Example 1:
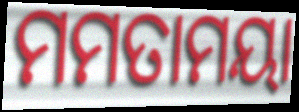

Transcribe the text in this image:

ମମତାମୟା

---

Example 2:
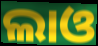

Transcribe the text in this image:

ଲାଓ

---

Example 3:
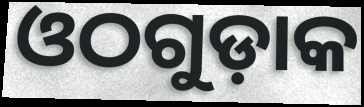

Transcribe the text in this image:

ଓଠଗୁଡ଼ାକ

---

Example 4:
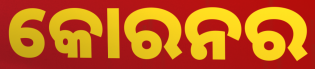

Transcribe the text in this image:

କୋରନର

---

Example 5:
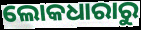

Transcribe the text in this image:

ଲୋକଧାରାରୁ